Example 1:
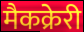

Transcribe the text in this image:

मैकक्रेरी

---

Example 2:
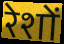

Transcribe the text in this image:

रेशों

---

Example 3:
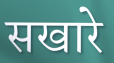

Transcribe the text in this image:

सखारे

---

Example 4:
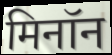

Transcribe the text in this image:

मिनॉन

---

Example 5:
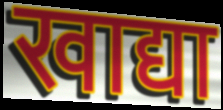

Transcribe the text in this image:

खाद्या